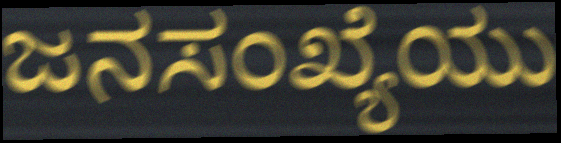
ಜನಸಂಖ್ಯೆಯು